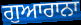
ਗੁਆਰਾਨਾ